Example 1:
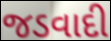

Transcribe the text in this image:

જડવાદી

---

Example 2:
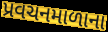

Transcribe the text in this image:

પ્રવચનમાળાના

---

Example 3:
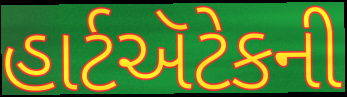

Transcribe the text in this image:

હાર્ટઍટેકની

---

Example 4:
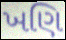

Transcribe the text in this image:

ખણિ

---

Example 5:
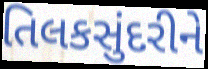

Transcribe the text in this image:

તિલકસુંદરીને